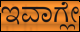
ಇವಾಗ್ಲೇ